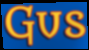
Gus